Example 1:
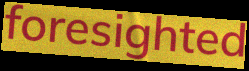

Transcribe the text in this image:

foresighted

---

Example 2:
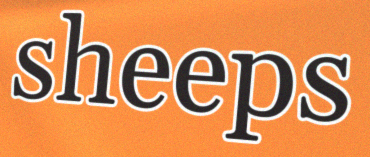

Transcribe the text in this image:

sheeps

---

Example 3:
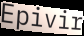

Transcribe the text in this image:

Epivir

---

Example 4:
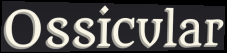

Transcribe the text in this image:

Ossicular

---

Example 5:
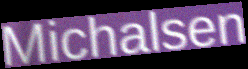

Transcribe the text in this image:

Michalsen